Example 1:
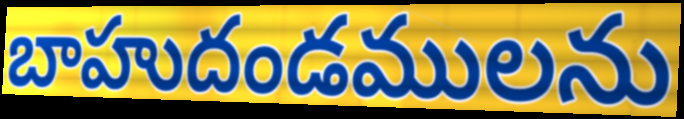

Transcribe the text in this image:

బాహుదండములను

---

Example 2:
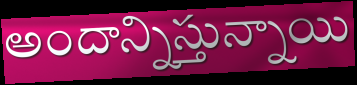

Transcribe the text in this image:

అందాన్నిస్తున్నాయి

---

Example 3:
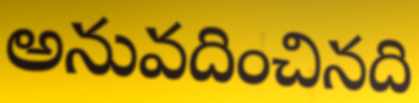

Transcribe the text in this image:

అనువదించినది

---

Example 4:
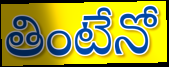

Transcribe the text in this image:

తింటేనో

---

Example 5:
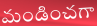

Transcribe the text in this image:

మండించగా